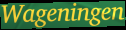
Wageningen